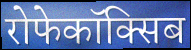
रोफेकॉक्सिब